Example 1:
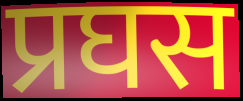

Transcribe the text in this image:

प्रघस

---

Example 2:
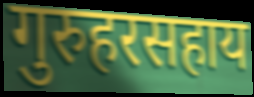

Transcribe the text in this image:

गुरुहरसहाय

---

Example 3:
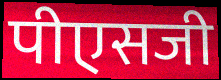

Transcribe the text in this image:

पीएसजी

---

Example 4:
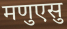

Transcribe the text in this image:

मणुएसु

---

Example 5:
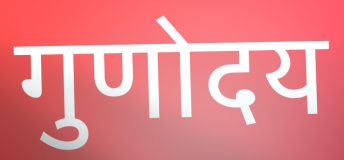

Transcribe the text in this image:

गुणोदय